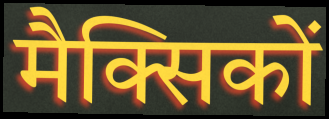
मैक्सिकों